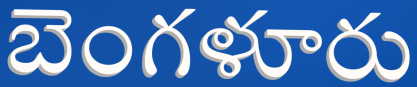
బెంగళూరు